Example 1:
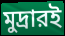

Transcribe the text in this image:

মুদ্রারই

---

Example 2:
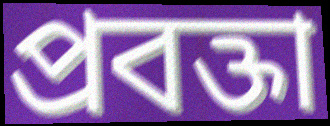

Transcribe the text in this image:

প্রবক্তা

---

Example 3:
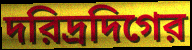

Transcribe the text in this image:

দরিদ্রদিগের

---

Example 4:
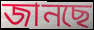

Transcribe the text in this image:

জানছে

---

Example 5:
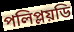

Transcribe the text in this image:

পলিপ্লয়ডি